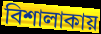
বিশালাকায়